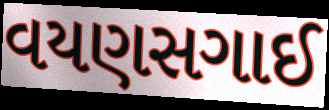
વયણસગાઈ